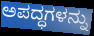
ಅಪದ್ಧಗಳನ್ನು